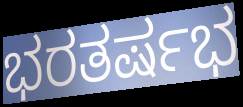
ಭರತರ್ಷಭ